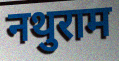
नथुराम